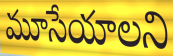
మూసేయాలని